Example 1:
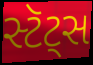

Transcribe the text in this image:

સ્ટૅટ્સ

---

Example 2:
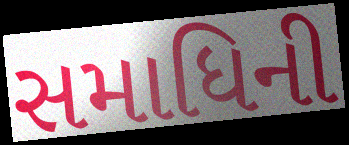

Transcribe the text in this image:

સમાધિની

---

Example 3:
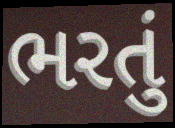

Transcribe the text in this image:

ભરતું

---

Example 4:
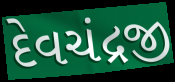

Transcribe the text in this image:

દેવચંદ્રજી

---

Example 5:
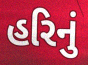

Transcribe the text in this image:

હરિનું